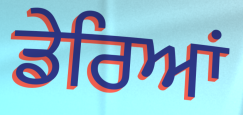
ਡੇਰਿਆਂ